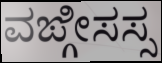
ವಙ್ಗೀಸಸ್ಸ